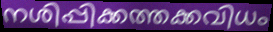
നശിപ്പിക്കത്തക്കവിധം